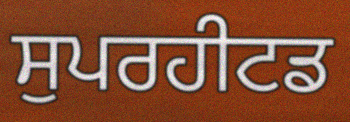
ਸੁਪਰਹੀਟਡ